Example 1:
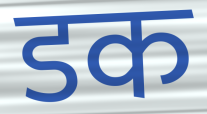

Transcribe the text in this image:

डक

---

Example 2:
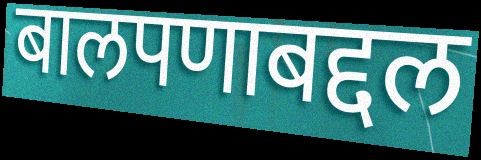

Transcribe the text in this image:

बालपणाबद्दल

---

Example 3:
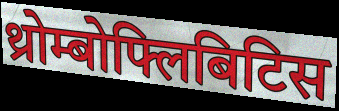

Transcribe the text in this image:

थ्रोम्बोफ्लिबिटिस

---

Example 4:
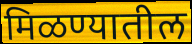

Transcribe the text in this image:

मिळण्यातील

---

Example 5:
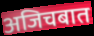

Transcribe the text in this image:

अजिचबात